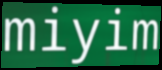
miyim